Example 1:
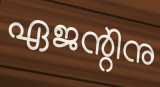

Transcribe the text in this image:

ഏജന്റിനു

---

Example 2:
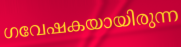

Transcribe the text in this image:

ഗവേഷകയായിരുന്ന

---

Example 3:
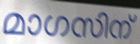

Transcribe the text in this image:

മാഗസിന്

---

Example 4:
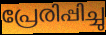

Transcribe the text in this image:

പ്രേരിപ്പിച്ചു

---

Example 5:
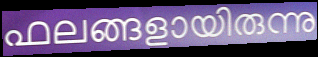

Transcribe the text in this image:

ഫലങ്ങളായിരുന്നു